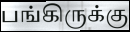
பங்கிருக்கு